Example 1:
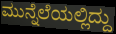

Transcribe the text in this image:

ಮುನ್ನೆಲೆಯಲ್ಲಿದ್ದು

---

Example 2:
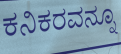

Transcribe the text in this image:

ಕನಿಕರವನ್ನೂ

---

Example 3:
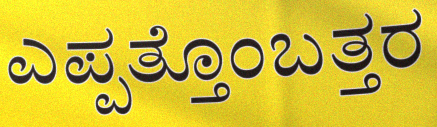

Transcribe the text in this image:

ಎಪ್ಪತ್ತೊಂಬತ್ತರ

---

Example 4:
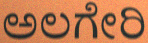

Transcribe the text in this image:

ಅಲಗೇರಿ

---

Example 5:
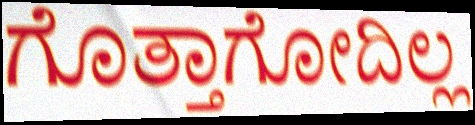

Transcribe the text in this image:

ಗೊತ್ತಾಗೋದಿಲ್ಲ